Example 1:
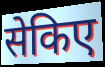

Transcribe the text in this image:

सेकिए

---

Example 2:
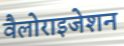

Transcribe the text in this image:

वैलोराइजेशन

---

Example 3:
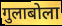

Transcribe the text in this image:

गुलाबोला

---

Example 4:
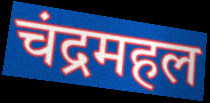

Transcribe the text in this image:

चंद्रमहल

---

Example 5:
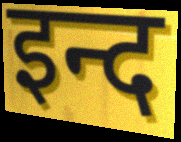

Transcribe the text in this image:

इन्द